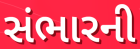
સંભારની